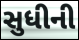
સુધીની